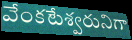
వేంకటేశ్వరునిగా